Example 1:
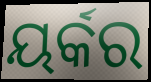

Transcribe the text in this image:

ୟର୍କର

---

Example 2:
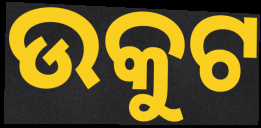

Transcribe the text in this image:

ଉକୁଟ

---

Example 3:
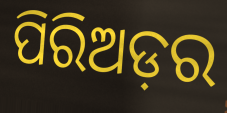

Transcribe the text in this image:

ପିରିଅଡ଼ର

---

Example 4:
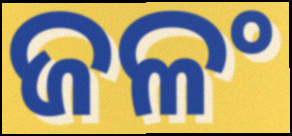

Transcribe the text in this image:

ଜଳଂ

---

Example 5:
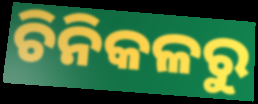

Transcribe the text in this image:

ଚିନିକଳରୁ